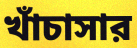
খাঁচাসার